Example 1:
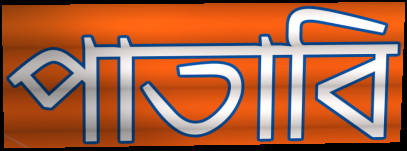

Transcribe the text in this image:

পাতাবি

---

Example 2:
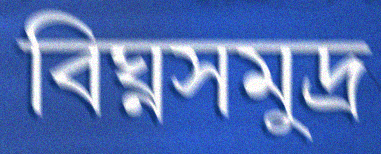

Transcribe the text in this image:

বিঘ্নসমুদ্র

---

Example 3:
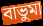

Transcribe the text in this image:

বাভুমা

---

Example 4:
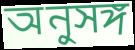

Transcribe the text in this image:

অনুসঙ্গ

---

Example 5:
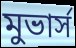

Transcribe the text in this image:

মুভার্স